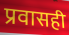
प्रवासही